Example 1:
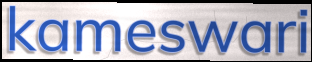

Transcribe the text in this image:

kameswari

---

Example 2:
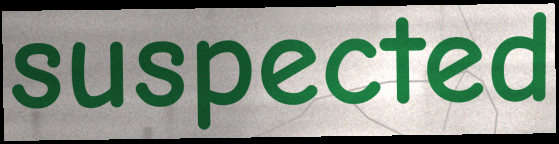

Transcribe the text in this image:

suspected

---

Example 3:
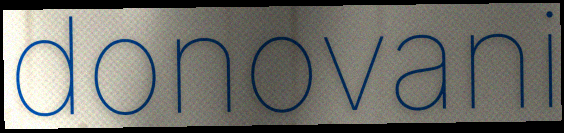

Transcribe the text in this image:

donovani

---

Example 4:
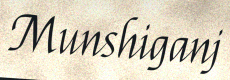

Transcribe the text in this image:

Munshiganj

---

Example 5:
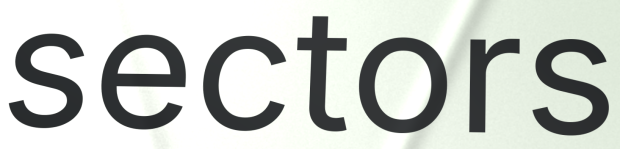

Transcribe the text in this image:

sectors